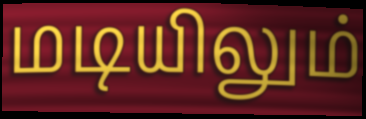
மடியிலும்